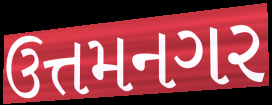
ઉત્તમનગર